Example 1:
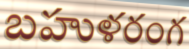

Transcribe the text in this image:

బహుళరంగ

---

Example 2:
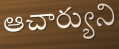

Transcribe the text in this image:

ఆచార్యుని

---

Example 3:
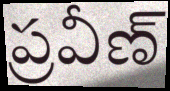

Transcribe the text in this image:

ప్రవీణ్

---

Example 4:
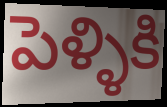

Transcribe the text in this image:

పెళ్ళికి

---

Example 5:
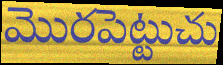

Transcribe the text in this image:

మొరపెట్టుచు